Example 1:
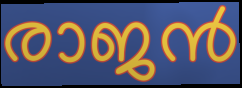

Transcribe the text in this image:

രാജൻ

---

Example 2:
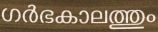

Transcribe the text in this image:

ഗർഭകാലത്തും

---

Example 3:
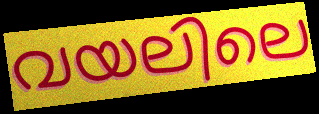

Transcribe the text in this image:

വയലിലെ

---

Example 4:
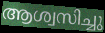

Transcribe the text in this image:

ആശ്വസിച്ചു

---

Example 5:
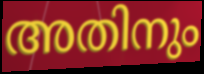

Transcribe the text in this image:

അതിനും